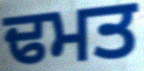
ਢਮਤ